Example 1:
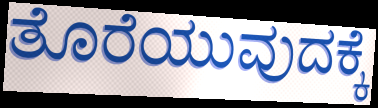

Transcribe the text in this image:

ತೊರೆಯುವುದಕ್ಕೆ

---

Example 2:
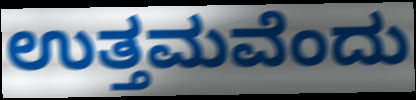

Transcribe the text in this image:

ಉತ್ತಮವೆಂದು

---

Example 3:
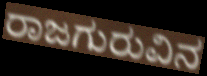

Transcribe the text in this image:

ರಾಜಗುರುವಿನ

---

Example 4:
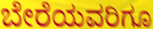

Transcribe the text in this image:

ಬೇರೆಯವರಿಗೂ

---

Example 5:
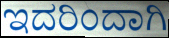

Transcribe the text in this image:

ಇದರಿಂದಾಗಿ